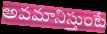
అవమానిస్తుంటే